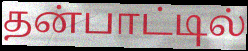
தன்பாட்டில்